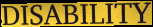
DISABILITY